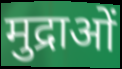
मुद्राओं